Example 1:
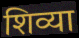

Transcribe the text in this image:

शिव्या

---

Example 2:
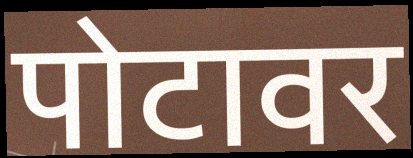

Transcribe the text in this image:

पोटावर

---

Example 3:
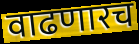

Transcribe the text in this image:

वाढणारच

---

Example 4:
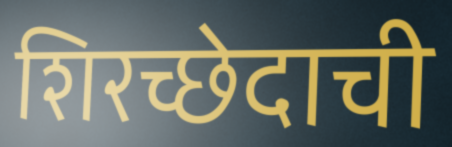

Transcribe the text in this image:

शिरच्छेदाची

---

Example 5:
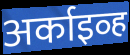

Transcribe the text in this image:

अर्काइव्ह